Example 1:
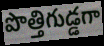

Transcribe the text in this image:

పొత్తిగుడ్డగా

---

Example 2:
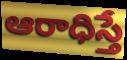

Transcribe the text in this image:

ఆరాధిస్తే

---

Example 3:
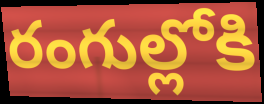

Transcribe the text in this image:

రంగుల్లోకి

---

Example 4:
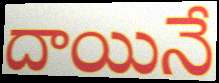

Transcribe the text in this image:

దాయినే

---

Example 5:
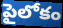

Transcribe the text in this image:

పైలోకం